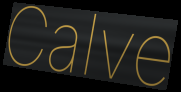
Calve